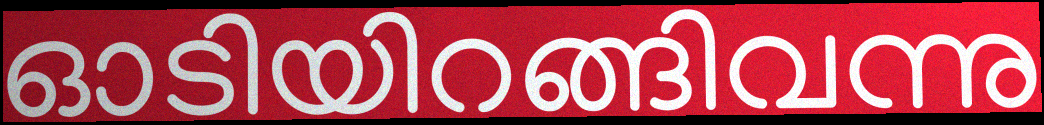
ഓടിയിറങ്ങിവന്നു